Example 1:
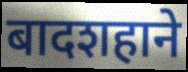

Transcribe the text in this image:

बादशहाने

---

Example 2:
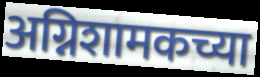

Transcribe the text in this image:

अग्निशामकच्या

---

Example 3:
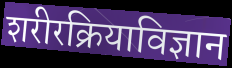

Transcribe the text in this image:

शरीरक्रियाविज्ञान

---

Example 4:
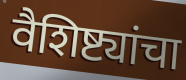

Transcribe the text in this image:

वैशिष्ट्यांचा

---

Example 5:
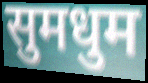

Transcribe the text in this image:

सुमधुम